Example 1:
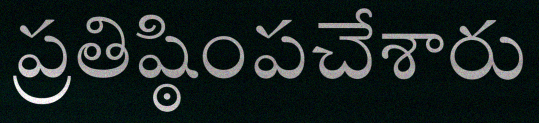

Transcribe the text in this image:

ప్రతిష్ఠింపచేశారు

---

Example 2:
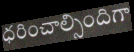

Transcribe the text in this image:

ధరించాల్సిందిగా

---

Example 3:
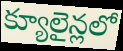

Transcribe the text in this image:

క్యూలైన్లలో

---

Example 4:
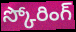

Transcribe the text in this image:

స్కోరింగ్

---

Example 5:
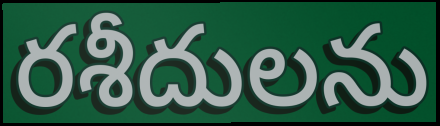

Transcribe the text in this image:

రశీదులను